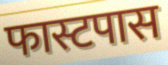
फास्टपास